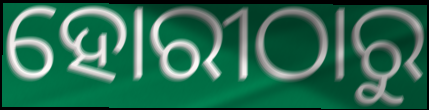
ହୋରୀଠାରୁ